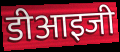
डीआइजी